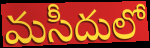
మసీదులో